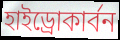
হাইড্রোকার্বন